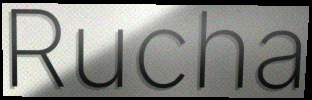
Rucha